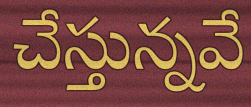
చేస్తున్నవే